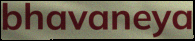
bhavaneya